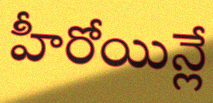
హీరోయిన్లే